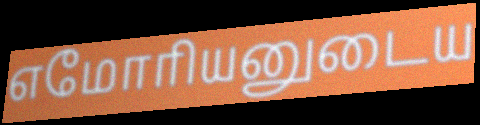
எமோரியனுடைய